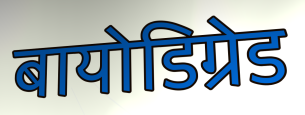
बायोडिग्रेड